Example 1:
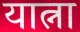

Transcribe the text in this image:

यात्ना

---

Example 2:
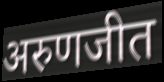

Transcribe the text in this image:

अरुणजीत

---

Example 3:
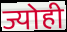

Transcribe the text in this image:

ज्योही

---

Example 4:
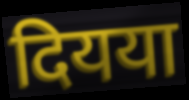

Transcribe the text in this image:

दियया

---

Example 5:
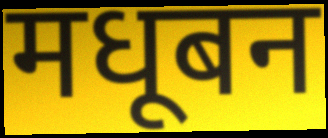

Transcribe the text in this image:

मधूबन